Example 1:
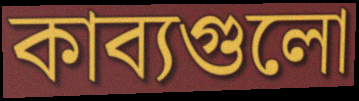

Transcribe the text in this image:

কাব্যগুলো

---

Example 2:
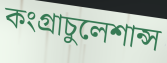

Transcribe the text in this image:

কংগ্রাচুলেশান্স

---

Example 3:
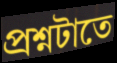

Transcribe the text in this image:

প্রশ্নটাতে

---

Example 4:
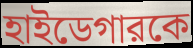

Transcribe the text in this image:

হাইডেগারকে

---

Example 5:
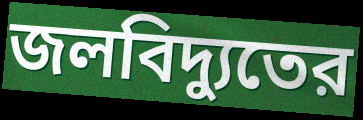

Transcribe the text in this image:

জলবিদ্যুতের